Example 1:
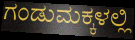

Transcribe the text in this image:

ಗಂಡುಮಕ್ಕಳಲ್ಲಿ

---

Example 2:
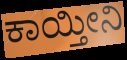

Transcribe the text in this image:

ಕಾಯ್ತೀನಿ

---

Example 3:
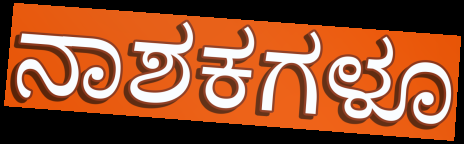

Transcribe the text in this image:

ನಾಶಕಗಳೂ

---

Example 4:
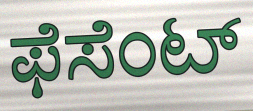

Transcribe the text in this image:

ಫೆಸೆಂಟ್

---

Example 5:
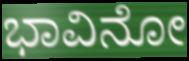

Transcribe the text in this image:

ಭಾವಿನೋ